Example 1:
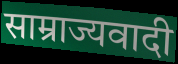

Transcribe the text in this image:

साम्राज्यवादी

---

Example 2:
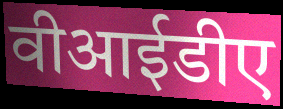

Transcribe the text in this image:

वीआईडीए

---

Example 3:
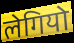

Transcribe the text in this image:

लेगियो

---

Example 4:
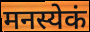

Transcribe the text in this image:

मनस्येकं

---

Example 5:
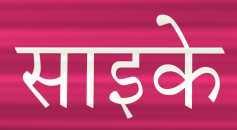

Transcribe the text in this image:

साइके